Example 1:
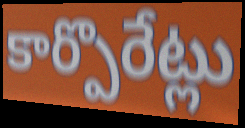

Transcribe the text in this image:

కార్పొరేట్లు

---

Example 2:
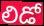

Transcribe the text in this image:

లిడో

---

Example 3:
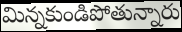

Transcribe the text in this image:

మిన్నకుండిపోతున్నారు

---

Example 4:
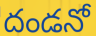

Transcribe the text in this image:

దండనో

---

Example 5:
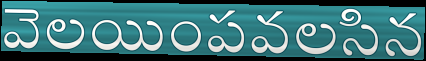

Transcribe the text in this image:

వెలయింపవలసిన